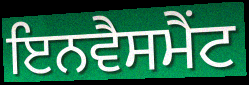
ਇਨਵੈਸਮੈਂਟ